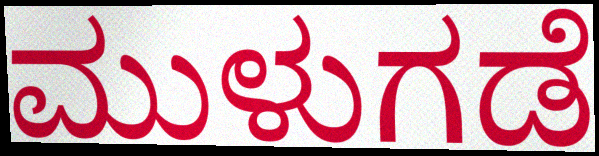
ಮುಳುಗಡೆ